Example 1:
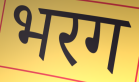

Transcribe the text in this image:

भरग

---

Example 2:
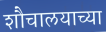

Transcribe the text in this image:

शौचालयाच्या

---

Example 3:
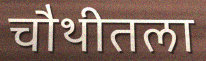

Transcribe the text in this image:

चौथीतला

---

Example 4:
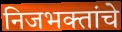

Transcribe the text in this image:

निजभक्तांचे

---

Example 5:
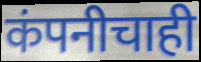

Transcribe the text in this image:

कंपनीचाही